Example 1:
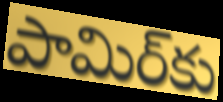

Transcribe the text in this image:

పామిర్‌కు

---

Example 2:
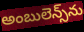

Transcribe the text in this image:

అంబులెన్స్‌ను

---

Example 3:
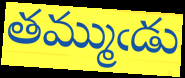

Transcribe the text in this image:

తమ్ముఁడు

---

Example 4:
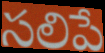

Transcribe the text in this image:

సలిపే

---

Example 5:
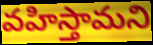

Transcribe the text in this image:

వహిస్తామని